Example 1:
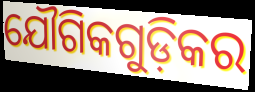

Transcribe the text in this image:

ଯୌଗିକଗୁଡ଼ିକର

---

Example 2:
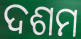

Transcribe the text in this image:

ଦଶମ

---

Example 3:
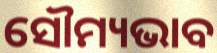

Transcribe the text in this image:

ସୌମ୍ୟଭାବ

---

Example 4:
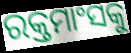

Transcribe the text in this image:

ରକ୍ତମାଂସକୁ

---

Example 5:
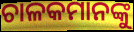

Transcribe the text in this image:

ଚାଳକମାନଙ୍କୁ